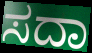
ಸದಾ